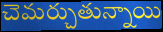
చెమర్చుతున్నాయి